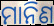
ମାନିଣ